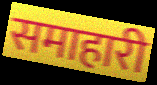
समाहारी